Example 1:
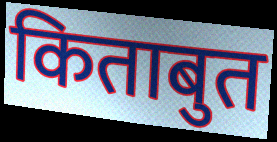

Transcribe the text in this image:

किताबुत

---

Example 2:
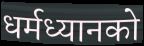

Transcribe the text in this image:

धर्मध्यानको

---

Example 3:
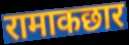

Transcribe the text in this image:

रामाकछार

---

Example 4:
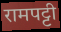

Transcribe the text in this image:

रामपट्टी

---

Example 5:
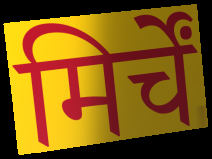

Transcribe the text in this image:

मिर्चें